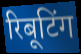
रिबूटिंग